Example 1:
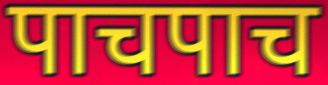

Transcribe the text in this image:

पाचपाच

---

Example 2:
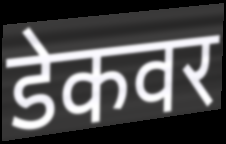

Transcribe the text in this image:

डेकवर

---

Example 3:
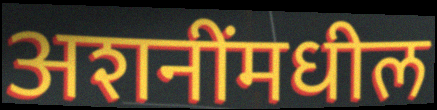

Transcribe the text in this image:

अशनींमधील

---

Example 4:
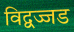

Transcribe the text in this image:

विद्वज्जड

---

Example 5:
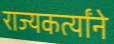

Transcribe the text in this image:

राज्यकर्त्यांने